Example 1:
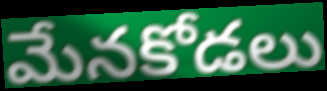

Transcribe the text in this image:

మేనకోడలు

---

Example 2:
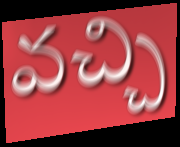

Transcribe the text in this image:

వచ్చి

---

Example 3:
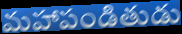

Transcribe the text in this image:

మహాపండితుడు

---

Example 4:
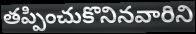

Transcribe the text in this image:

తప్పించుకొనినవారిని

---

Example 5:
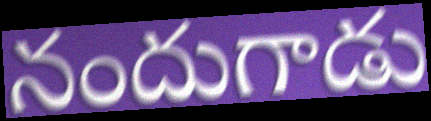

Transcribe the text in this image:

నందుగాడు